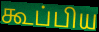
கூப்பிய